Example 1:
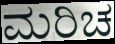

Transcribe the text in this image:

ಮರಿಚ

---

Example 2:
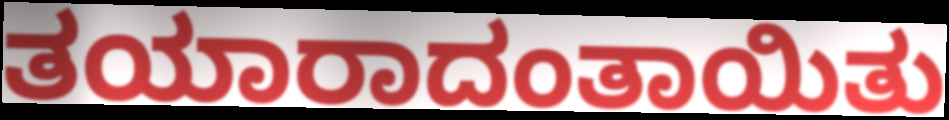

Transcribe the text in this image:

ತಯಾರಾದಂತಾಯಿತು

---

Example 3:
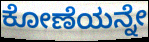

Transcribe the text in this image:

ಕೋಣೆಯನ್ನೇ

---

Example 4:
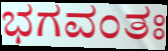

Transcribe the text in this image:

ಭಗವಂತಃ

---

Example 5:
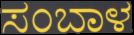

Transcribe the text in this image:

ಸಂಬಾಳ